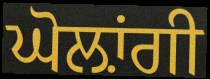
ਘੋਲ਼ਾਂਗੀ